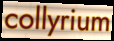
collyrium